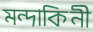
মন্দাকিনী